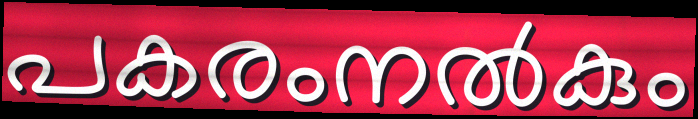
പകരംനൽകും